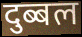
दुब्बल